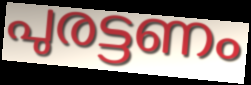
പുരട്ടണം